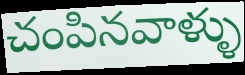
చంపినవాళ్ళు